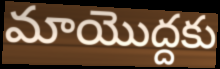
మాయొద్దకు